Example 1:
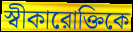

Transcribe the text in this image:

স্বীকারোক্তিকে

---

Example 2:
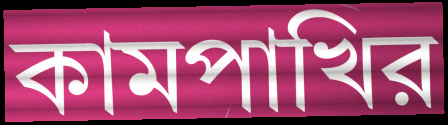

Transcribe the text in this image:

কামপাখির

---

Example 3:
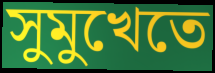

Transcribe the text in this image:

সুমুখেতে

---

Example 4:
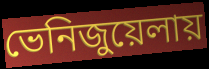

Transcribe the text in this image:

ভেনিজুয়েলায়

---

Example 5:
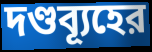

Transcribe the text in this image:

দণ্ডব্যূহের